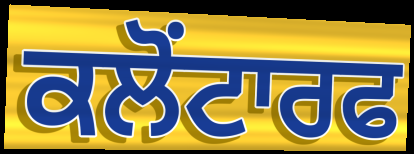
ਕਲੋਂਟਾਰਫ